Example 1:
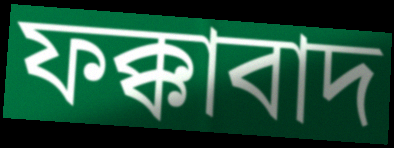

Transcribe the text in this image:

ফক্কাবাদ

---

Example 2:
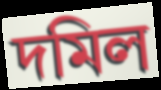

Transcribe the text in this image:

দমিল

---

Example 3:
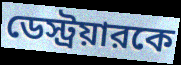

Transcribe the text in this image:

ডেস্ট্রয়ারকে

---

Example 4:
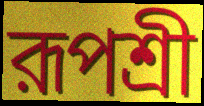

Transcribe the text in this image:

রূপশ্রী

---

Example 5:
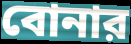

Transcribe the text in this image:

বোনার